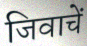
जिवाचें